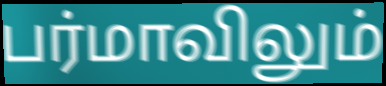
பர்மாவிலும்